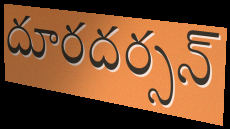
దూరదర్సన్